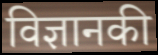
विज्ञानकी